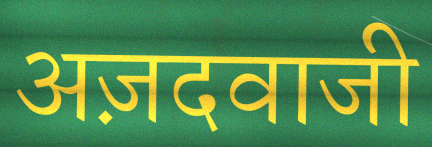
अज़दवाजी